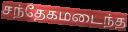
சந்தேகமடைந்த